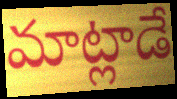
మాట్లాడే